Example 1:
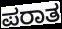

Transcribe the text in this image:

ಪರಾತ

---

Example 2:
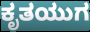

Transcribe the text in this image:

ಕೃತಯುಗ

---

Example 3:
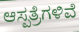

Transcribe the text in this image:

ಆಸ್ಪತ್ರೆಗಳಿವೆ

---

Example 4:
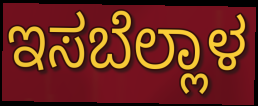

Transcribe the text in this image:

ಇಸಬೆಲ್ಲಾಳ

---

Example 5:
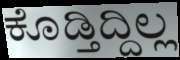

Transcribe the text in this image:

ಕೊಡ್ತಿದ್ದಿಲ್ಲ